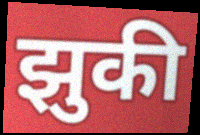
झुकी